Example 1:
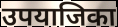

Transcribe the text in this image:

उपयाजिका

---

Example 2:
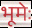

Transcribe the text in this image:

भूमेः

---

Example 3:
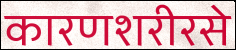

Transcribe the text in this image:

कारणशरीरसे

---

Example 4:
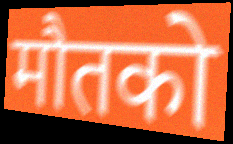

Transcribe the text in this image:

मौतको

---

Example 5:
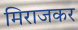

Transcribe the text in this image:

मिराजकर